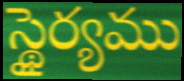
స్థైర్యము